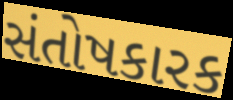
સંતોષકારક